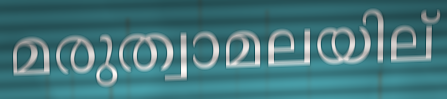
മരുത്വാമലയില്